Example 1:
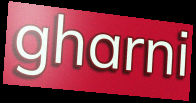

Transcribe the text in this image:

gharni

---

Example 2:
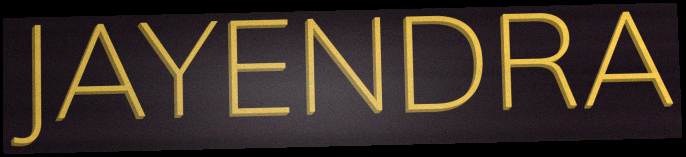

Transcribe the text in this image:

JAYENDRA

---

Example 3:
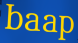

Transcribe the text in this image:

baap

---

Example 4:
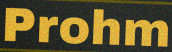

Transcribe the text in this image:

Prohm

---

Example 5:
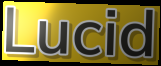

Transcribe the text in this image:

Lucid